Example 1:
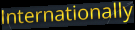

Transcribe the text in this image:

Internationally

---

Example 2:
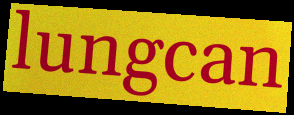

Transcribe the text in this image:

lungcan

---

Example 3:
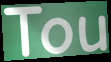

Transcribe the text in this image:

Tou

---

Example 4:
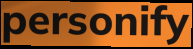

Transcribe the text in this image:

personify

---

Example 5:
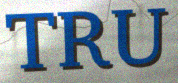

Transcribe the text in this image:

TRU